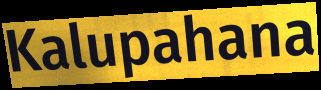
Kalupahana